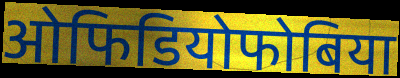
ओफिडियोफोबिया